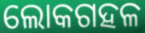
ଲୋକଗହଳ